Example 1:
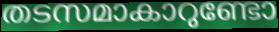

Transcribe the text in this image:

തടസമാകാറുണ്ടോ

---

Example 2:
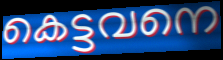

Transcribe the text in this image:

കെട്ടവനെ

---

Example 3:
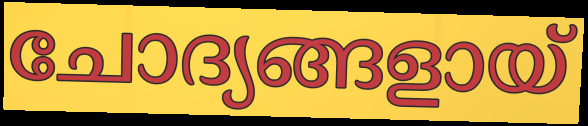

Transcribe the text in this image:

ചോദ്യങ്ങളായ്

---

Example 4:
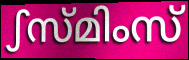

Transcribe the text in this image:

ഽസ്മിംസ്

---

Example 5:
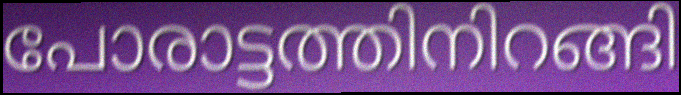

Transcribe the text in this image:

പോരാട്ടത്തിനിറങ്ങി